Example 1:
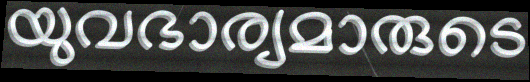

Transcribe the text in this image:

യുവഭാര്യമാരുടെ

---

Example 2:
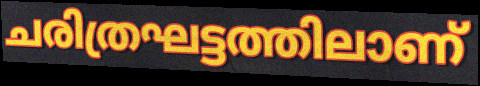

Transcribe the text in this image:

ചരിത്രഘട്ടത്തിലാണ്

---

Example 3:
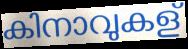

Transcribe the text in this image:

കിനാവുകള്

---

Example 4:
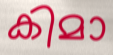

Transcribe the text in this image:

കിമാ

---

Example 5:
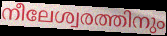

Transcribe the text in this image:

നീലേശ്വരത്തിനും